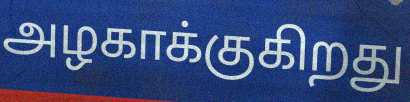
அழகாக்குகிறது